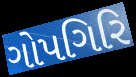
ગોપગિરિ